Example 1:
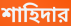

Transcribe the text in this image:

শাহিদার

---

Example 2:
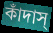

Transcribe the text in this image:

কাঁদাস্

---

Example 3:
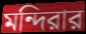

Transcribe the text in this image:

মন্দিরার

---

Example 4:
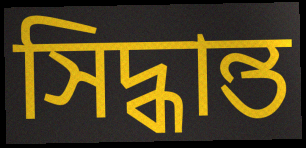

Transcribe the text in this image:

সিদ্ধান্ত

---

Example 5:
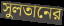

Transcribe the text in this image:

সুলতানের